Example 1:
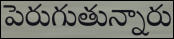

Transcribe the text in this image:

పెరుగుతున్నారు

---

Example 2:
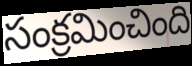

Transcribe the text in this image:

సంక్రమించింది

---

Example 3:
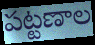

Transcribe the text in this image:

పట్టణాల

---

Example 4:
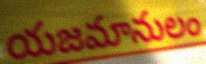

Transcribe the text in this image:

యజమానులం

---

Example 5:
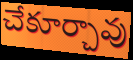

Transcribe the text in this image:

చేకూర్చావు